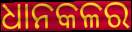
ଧାନକଳର